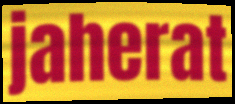
jaherat